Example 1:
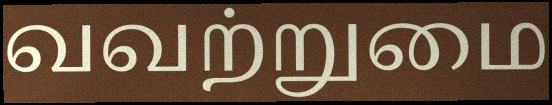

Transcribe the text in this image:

வவற்றுமை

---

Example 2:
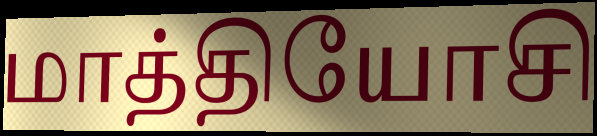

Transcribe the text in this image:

மாத்தியோசி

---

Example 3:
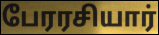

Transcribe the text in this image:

பேரரசியார்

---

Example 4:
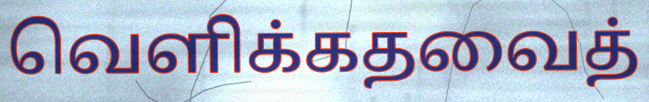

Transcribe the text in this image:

வெளிக்கதவைத்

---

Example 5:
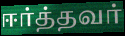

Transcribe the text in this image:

ஈர்த்தவர்